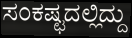
ಸಂಕಷ್ಟದಲ್ಲಿದ್ದು